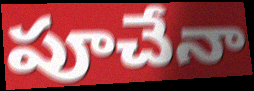
పూచేనా